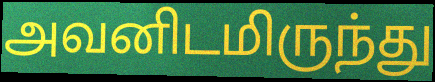
அவனிடமிருந்து